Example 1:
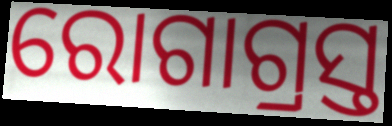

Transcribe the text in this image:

ରୋଗାଗ୍ରସ୍ତ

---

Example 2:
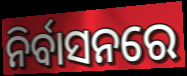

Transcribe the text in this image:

ନିର୍ବାସନରେ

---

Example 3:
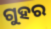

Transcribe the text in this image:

ଗୁହର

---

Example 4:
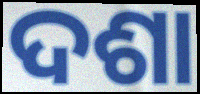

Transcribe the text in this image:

ଦଶା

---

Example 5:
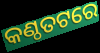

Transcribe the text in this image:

କଣ୍ଠତଟରେ